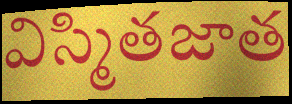
విస్మితజాత